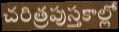
చరిత్రపుస్తకాల్లో